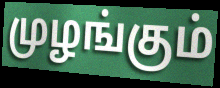
முழங்கும்